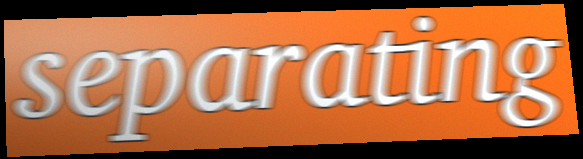
separating